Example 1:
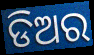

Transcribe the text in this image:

ଡିଅର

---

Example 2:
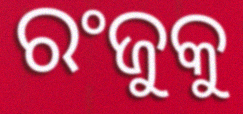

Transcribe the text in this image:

ରଂଜୁକୁ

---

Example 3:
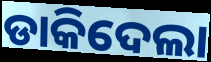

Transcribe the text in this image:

ଡାକିଦେଲା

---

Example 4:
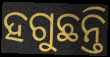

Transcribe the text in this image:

ହଗୁଛନ୍ତି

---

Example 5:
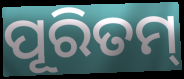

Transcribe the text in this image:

ପୂରିତମ୍